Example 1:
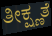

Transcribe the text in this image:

ತೀಕ್ಷ್ಣತೆ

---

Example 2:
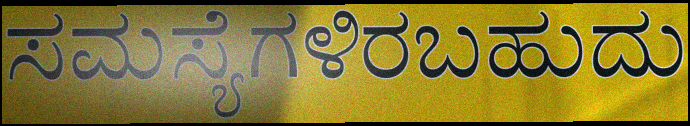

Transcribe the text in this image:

ಸಮಸ್ಯೆಗಳಿರಬಹುದು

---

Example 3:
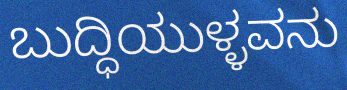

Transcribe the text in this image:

ಬುದ್ಧಿಯುಳ್ಳವನು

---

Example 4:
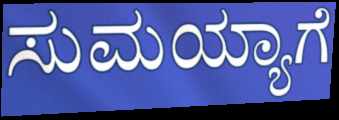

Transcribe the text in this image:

ಸುಮಯ್ಯಾಗೆ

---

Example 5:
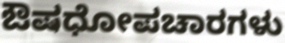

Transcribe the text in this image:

ಔಷಧೋಪಚಾರಗಳು